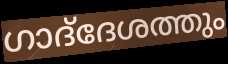
ഗാദ്‌ദേശത്തും